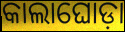
କାଲାଘୋଡ଼ା